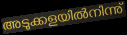
അടുക്കളയിൽനിന്നു്